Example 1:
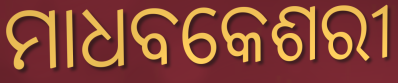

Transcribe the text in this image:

ମାଧବକେଶରୀ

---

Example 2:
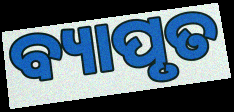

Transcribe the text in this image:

ବ୍ୟାପୃତ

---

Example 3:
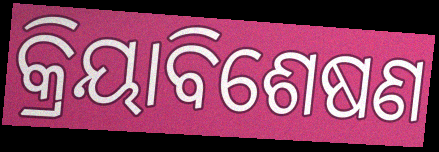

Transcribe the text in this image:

କ୍ରିୟାବିଶେଷଣ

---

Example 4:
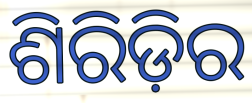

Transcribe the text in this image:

ଶିରିଡ଼ିର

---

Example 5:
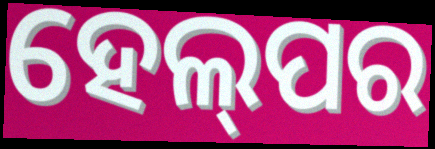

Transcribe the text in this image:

ହେଲ୍‌ପର